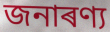
জনাৰণ্য